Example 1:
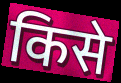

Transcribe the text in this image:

किसे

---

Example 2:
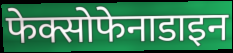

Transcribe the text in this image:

फेक्सोफेनाडाइन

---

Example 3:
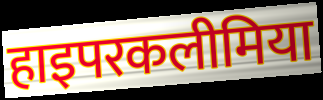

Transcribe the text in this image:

हाइपरकलीमिया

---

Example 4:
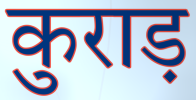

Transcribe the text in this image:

कुराड़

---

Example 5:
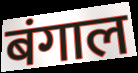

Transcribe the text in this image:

बंगाल